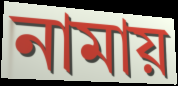
নামায়